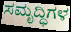
ಸಮೃದ್ಧಿಗಳ